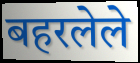
बहरलेले